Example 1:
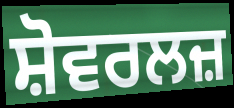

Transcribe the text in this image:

ਸ਼ੋਵਰਲਜ਼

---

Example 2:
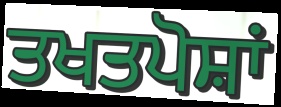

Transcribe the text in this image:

ਤਖਤਪੋਸ਼ਾਂ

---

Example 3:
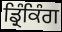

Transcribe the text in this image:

ਡ੍ਰਿੰਕਿੰਗ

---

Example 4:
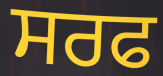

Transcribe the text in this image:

ਸਰਫ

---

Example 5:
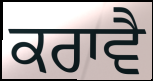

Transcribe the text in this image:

ਕਰਾਵੈ